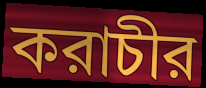
করাচীর